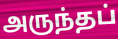
அருந்தப்